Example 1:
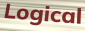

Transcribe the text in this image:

Logical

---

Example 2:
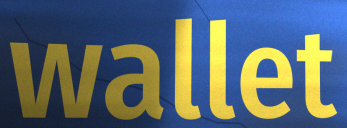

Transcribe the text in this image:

wallet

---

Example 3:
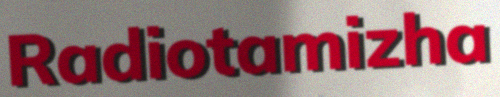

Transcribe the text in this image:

Radiotamizha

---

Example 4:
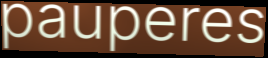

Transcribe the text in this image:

pauperes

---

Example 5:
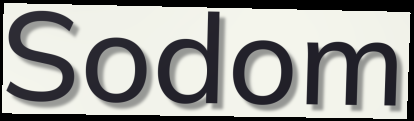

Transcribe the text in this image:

Sodom